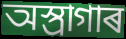
অস্ত্ৰাগাৰ